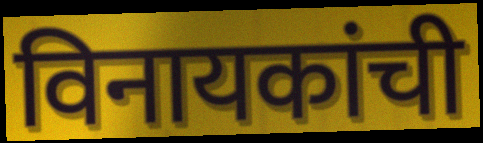
विनायकांची